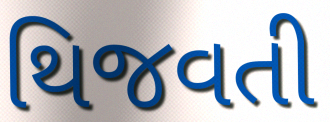
થિજવતી